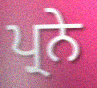
ਪ੍ਰਨੇ